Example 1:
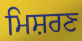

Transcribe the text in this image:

ਮਿਸ਼ਰਣ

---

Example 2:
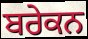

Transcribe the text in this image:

ਬਰੇਕਨ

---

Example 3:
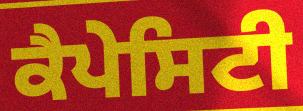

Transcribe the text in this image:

ਕੈਪੇਸਿਟੀ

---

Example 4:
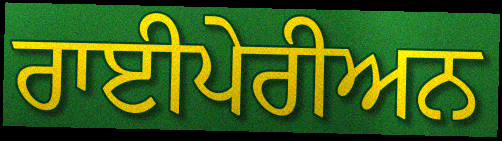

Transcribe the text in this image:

ਰਾਈਪੇਰੀਅਨ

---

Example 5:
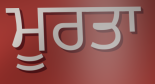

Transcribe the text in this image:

ਮੂਰਤਾ